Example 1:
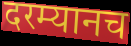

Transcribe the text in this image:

दरम्यानच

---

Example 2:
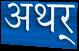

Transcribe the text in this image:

अथर्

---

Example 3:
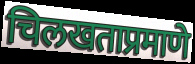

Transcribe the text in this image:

चिलखताप्रमाणे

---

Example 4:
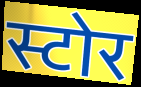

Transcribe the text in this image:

स्टोर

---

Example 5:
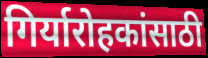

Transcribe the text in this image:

गिर्यारोहकांसाठी